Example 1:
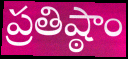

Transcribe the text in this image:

ప్రతిష్ఠాం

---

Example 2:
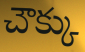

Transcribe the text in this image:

చౌక్కు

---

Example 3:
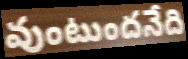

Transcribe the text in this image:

వుంటుందనేది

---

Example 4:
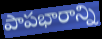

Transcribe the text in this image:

పాపభారాన్ని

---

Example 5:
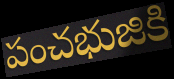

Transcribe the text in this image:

పంచభుజికి